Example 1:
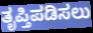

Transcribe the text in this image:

ತೃಪ್ತಿಪಡಿಸಲು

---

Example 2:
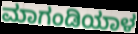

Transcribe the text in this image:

ಮಾಗಂಡಿಯಾಳ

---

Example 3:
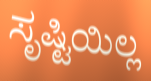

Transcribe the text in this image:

ಸೃಷ್ಟಿಯಿಲ್ಲ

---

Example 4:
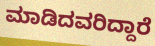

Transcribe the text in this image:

ಮಾಡಿದವರಿದ್ದಾರೆ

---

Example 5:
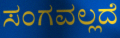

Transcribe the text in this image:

ಸಂಗವಲ್ಲದೆ